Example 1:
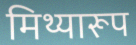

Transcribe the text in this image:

मिथ्यारूप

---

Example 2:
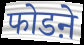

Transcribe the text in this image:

फोडऩे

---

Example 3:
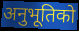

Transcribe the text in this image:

अनुभूतिको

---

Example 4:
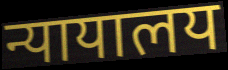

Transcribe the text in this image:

न्‍यायालय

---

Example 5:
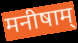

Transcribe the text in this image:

मनीषाम्